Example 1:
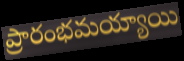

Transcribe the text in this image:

ప్రారంభమయ్యాయి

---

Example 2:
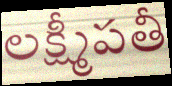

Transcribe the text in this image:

లక్ష్మీపతీ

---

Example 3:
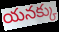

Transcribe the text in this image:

యనక్కు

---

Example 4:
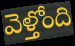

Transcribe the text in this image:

వెళ్తోంది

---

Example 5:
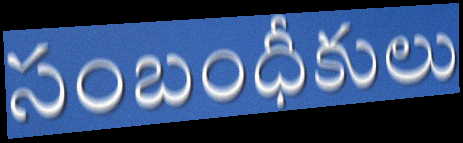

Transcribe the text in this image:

సంబంధీకులు